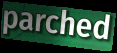
parched